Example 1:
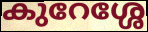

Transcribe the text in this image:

കുറേശ്ശേ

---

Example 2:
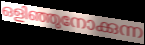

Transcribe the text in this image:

ഒളിഞ്ഞുനോക്കുന്ന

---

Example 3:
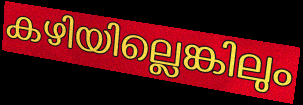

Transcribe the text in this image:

കഴിയില്ലെങ്കിലും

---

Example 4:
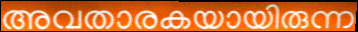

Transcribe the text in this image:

അവതാരകയായിരുന്ന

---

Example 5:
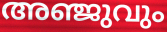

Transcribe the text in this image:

അഞ്ജുവും